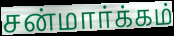
சன்மார்க்கம்